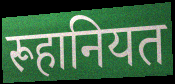
रूहानियत